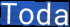
Toda